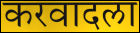
करवादला